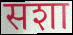
सशा